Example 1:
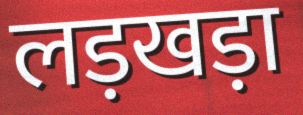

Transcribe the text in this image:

लड़खड़ा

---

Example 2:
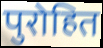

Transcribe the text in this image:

पुरोहित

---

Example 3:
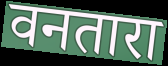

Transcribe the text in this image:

वनतारा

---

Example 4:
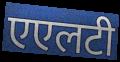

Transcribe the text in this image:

एएलटी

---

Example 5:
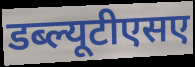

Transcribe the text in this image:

डब्ल्यूटीएसए